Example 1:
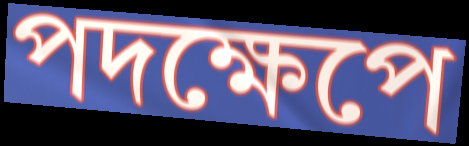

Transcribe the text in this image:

পদক্ষেপে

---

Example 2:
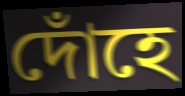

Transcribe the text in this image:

দোঁহে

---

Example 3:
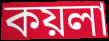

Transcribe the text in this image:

কয়লা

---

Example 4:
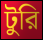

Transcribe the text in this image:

টুরি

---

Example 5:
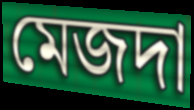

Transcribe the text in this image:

মেজদা